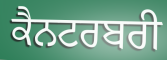
ਕੈਨਟਰਬਰੀ